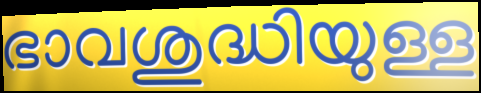
ഭാവശുദ്ധിയുള്ള